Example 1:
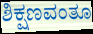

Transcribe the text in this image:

ಶಿಕ್ಷಣವಂತೂ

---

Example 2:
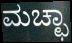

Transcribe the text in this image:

ಮಚ್ಛಾ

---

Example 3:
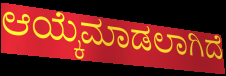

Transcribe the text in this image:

ಆಯ್ಕೆಮಾಡಲಾಗಿದೆ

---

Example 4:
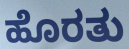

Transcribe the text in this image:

ಹೊರತು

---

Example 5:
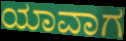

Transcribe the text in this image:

ಯಾವಾಗ